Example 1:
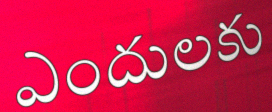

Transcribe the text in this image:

ఎందులకు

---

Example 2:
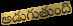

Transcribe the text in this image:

అడుగుతుంది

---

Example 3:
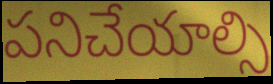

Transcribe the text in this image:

పనిచేయాల్సి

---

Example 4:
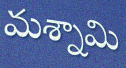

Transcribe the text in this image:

మశ్నామి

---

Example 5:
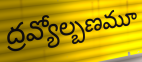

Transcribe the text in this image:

ద్రవ్యోల్బణమూ